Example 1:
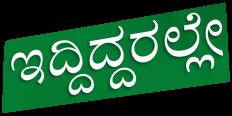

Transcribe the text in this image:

ಇದ್ದಿದ್ದರಲ್ಲೇ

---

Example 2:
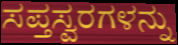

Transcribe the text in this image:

ಸಪ್ತಸ್ವರಗಳನ್ನು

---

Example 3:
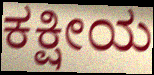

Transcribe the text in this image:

ಕಕ್ಷೀಯ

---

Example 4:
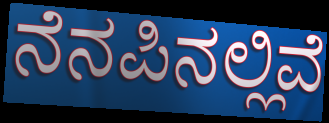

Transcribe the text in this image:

ನೆನಪಿನಲ್ಲಿವೆ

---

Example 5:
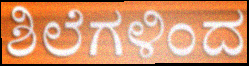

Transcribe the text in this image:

ಶಿಲೆಗಳಿಂದ